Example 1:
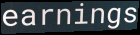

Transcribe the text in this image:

earnings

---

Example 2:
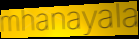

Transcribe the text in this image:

mhanayala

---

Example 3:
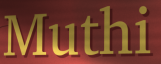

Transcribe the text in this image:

Muthi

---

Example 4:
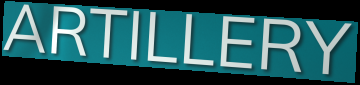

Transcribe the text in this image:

ARTILLERY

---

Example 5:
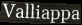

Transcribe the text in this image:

Valliappa